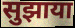
सुझाया